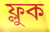
ফ্লুক